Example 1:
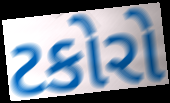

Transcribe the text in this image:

ટકોરો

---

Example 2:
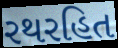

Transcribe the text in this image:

રથરહિત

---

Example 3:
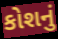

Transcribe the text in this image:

કોશનું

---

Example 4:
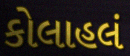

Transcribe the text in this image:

કોલાહલં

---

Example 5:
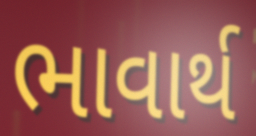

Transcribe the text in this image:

ભાવાર્થ